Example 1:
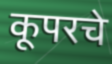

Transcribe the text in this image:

कूपरचे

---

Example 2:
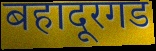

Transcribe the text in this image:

बहादूरगड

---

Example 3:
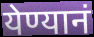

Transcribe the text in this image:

येण्यानं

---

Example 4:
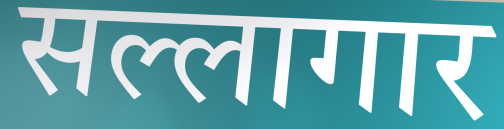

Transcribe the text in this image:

सल्‍लागार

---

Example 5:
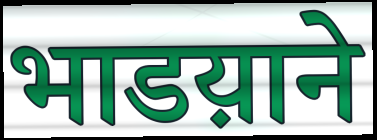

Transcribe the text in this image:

भाडय़ाने